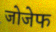
जोजेफ